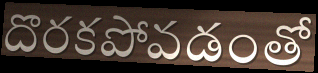
దొరకపోవడంతో